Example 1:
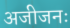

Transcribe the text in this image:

अजीजनः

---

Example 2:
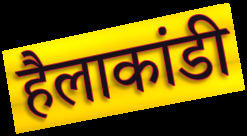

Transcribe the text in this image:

हैलाकांडी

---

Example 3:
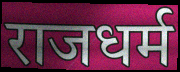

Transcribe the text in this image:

राजधर्म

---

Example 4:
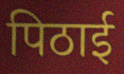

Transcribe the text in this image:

पिठाई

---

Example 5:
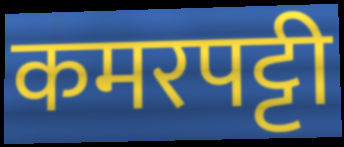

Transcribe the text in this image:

कमरपट्टी